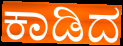
ಕಾಡಿದ